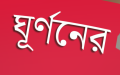
ঘূর্ণনের